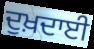
ਦੁਖ਼ਦਾਈ